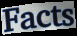
Facts